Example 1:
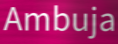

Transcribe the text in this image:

Ambuja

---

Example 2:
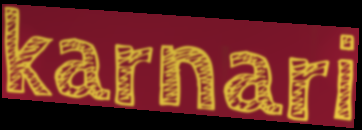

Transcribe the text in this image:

karnari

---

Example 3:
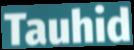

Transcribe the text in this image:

Tauhid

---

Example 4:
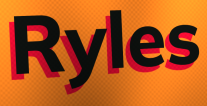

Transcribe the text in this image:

Ryles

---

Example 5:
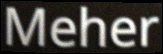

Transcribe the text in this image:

Meher